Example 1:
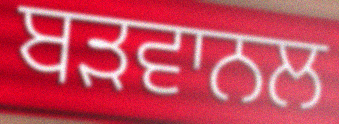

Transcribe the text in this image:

ਬੜਵਾਨਲ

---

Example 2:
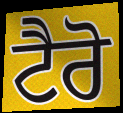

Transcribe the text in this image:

ਟੈਰੋ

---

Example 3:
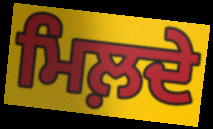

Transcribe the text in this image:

ਮਿਲ਼ਦੇ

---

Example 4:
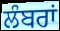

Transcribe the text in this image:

ਲੰਬਰਾਂ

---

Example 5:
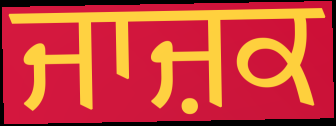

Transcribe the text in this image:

ਜਾਜ਼ਕ